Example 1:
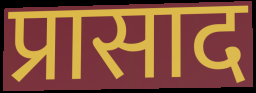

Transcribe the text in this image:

प्रासाद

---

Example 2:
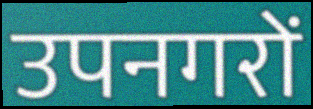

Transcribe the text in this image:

उपनगरों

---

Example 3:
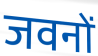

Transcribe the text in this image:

जवनों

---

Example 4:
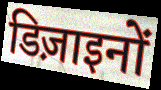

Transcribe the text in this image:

डिज़ाइनों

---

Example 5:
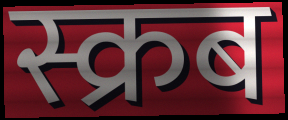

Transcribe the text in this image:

स्क्रब